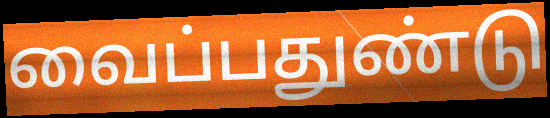
வைப்பதுண்டு